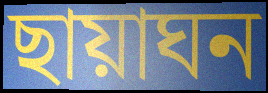
ছায়াঘন